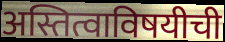
अस्तित्वाविषयीची